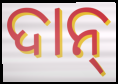
ଦାନ୍